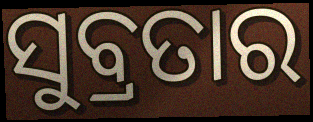
ସୁବ୍ରତାର